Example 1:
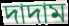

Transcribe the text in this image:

দাদাম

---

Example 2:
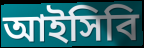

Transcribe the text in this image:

আইসিবি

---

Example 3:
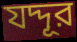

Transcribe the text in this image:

যদ্দূর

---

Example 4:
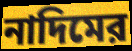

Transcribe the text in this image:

নাদিমের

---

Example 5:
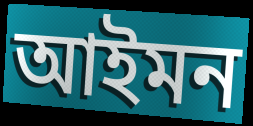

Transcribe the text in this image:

আইমন